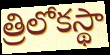
త్రిలోకస్థా